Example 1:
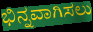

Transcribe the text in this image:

ಭಿನ್ನವಾಗಿಸಲು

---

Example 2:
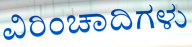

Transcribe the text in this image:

ವಿರಿಂಚಾದಿಗಳು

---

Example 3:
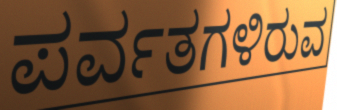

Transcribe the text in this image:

ಪರ್ವತಗಳಿರುವ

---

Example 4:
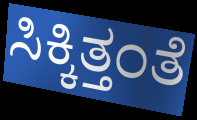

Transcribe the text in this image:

ಸಿಕ್ಕಿತ್ತಂತೆ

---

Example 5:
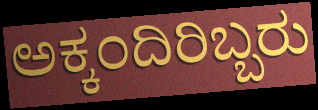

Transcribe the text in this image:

ಅಕ್ಕಂದಿರಿಬ್ಬರು